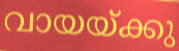
വായയ്ക്കു